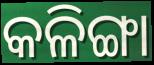
କଳିଙ୍ଗା